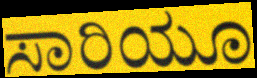
ಸಾರಿಯೂ